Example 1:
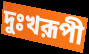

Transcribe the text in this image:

দুঃখরূপী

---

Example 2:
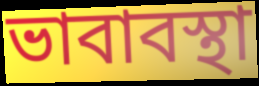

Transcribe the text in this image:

ভাবাবস্থা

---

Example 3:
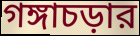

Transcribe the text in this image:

গঙ্গাচড়ার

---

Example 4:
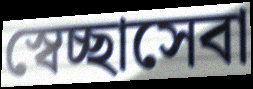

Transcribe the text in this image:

স্বেচ্ছাসেবা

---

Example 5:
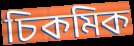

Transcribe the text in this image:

চিকমিক